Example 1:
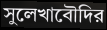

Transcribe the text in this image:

সুলেখাবৌদির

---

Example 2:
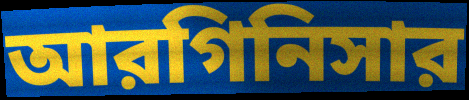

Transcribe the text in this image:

আরগিনিসার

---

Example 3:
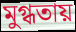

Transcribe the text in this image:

মুগ্ধতায়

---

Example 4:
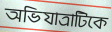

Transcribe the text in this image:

অভিযাত্রাটিকে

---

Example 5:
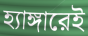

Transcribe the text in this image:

হ্যাঙ্গারেই